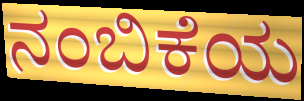
ನಂಬಿಕೆಯ